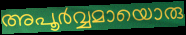
അപൂർവ്വമായൊരു